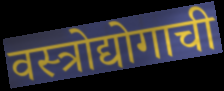
वस्त्रोद्योगाची